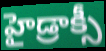
హైడ్రాక్సీ